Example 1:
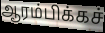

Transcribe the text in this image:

ஆரம்பிக்கச்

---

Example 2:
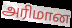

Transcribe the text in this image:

அரிமான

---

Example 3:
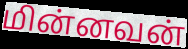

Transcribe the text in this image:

மின்னவன்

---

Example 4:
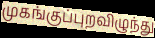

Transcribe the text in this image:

முகங்குப்புறவிழுந்து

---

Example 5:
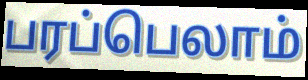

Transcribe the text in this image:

பரப்பெலாம்